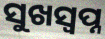
ସୁଖସ୍ୱପ୍ନ